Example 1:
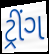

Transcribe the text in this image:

ટ્રીંગ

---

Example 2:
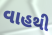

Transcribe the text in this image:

વાહથી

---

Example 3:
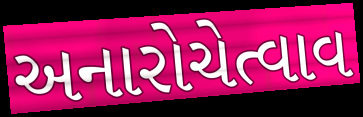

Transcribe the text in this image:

અનારોચેત્વાવ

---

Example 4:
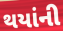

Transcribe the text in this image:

થયાંની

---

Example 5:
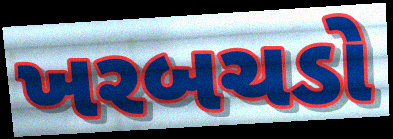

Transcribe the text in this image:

ખરબચડો